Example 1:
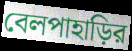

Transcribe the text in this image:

বেলপাহাড়ির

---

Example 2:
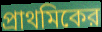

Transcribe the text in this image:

প্রাথমিকের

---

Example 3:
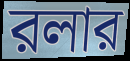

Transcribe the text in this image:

রলার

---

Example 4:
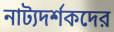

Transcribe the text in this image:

নাট্যদর্শকদের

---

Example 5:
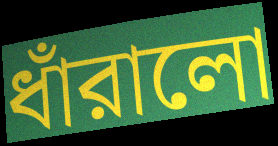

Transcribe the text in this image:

ধাঁরালো